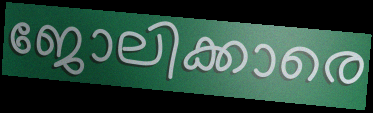
ജോലിക്കാരെ